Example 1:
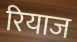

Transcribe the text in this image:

रियाज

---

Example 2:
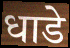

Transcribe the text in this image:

धाडे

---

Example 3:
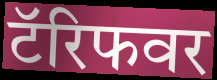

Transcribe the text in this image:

टॅरिफवर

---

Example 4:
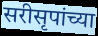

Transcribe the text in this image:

सरीसृपांच्या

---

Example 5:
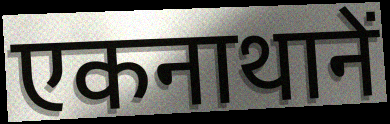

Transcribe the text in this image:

एकनाथानें